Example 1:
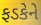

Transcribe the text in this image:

ફડકેને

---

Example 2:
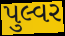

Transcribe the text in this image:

પુલ્વર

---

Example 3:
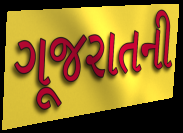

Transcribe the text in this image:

ગૂજરાતની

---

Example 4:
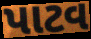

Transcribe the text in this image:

પાટવ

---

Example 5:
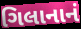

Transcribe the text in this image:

ગિલાનાનં